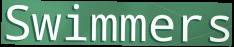
Swimmers